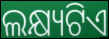
ଲକ୍ଷ୍ୟଟିଏ